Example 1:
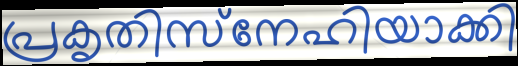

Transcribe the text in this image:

പ്രകൃതിസ്‌നേഹിയാക്കി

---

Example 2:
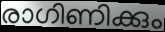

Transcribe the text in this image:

രാഗിണിക്കും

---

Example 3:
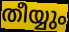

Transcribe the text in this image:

തീയ്യും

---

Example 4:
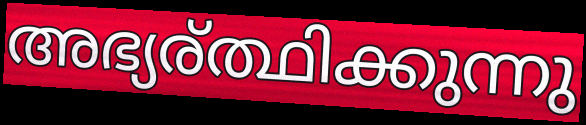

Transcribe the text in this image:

അഭ്യര്ത്ഥിക്കുന്നു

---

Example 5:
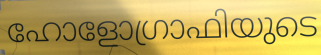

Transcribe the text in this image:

ഹോളോഗ്രാഫിയുടെ